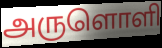
அருளொளி